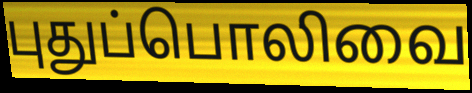
புதுப்பொலிவை